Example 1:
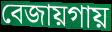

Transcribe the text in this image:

বেজায়গায়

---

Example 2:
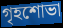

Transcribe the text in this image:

গৃহশোভা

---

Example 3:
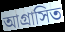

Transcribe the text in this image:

আগ্রাসিত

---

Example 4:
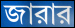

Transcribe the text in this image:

জারার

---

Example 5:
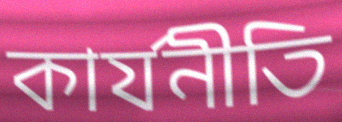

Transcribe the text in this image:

কার্যনীতি